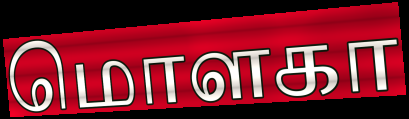
மொளகா